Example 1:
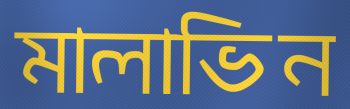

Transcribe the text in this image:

মালাভিন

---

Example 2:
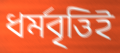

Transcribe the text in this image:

ধর্মবৃত্তিই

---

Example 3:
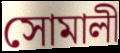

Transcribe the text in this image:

সোমালী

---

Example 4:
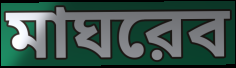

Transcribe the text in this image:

মাঘরেব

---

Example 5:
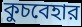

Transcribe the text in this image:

কুচবেহার